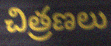
చిత్రణలు